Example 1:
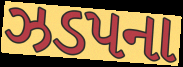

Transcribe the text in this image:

ઝડપના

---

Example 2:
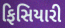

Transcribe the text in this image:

ફિસિયારી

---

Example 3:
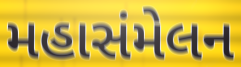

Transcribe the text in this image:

મહાસંમેલન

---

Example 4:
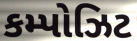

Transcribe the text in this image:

કમ્પોઝિટ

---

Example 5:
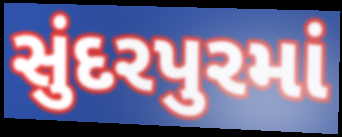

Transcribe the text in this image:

સુંદરપુરમાં